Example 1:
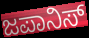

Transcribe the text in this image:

ಜಪಾನಿಸ್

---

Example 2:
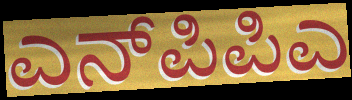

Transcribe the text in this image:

ಎನ್‌ಪಿಪಿಎ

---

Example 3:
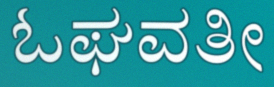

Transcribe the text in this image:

ಓಘವತೀ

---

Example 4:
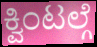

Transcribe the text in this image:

ಕ್ವಿಂಟಲ್ಗೆ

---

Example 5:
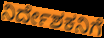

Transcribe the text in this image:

ನಿರ್ದೇಶಕನಿಗೆ